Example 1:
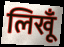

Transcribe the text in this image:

लिखूंँ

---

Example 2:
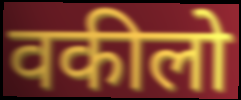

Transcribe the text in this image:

वकीलो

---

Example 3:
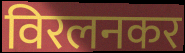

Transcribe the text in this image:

विरलनकर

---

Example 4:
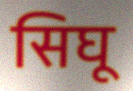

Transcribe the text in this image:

सिघू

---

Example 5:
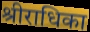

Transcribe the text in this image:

श्रीराधिका